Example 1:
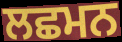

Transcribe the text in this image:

ਲਛਮਨ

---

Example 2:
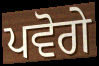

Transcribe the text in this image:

ਪਵੋਗੇ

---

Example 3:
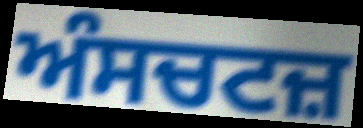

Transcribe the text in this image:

ਅੰਸਚਟਜ਼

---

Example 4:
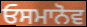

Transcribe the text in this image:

ਓਸਮਾਨੋਵ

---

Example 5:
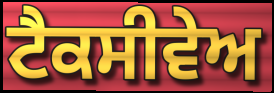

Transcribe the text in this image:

ਟੈਕਸੀਵੇਅ